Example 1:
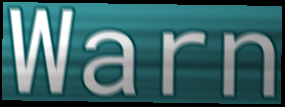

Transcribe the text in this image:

Warn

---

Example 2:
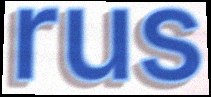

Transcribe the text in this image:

rus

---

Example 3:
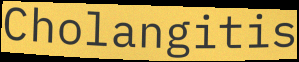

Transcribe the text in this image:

Cholangitis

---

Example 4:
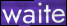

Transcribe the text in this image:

waite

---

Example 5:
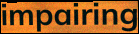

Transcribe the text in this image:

impairing